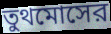
তুথমোসের